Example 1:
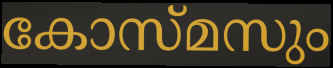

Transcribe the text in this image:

കോസ്മസും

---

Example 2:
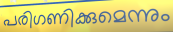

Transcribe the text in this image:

പരിഗണിക്കുമെന്നും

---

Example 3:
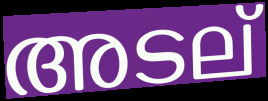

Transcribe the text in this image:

അടല്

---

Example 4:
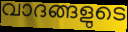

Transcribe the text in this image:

വാദങ്ങളുടെ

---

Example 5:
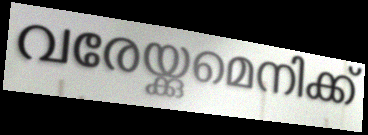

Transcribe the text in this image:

വരേയ്ക്കുമെനിക്ക്